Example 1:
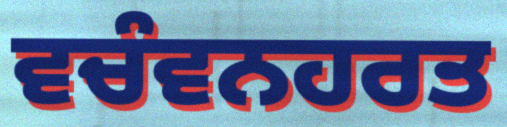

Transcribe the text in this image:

ਵਚੰਵਨਹਰਤ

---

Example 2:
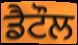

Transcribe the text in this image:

ਡੈਟੌਲ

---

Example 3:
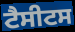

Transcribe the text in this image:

ਟੈਸੀਟਸ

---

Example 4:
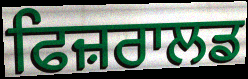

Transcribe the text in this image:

ਫਿਜ਼ਰਾਲਡ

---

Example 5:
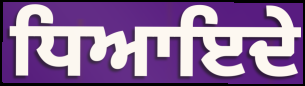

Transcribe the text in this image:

ਧਿਆਇਦੇ